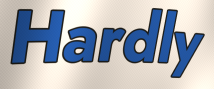
Hardly